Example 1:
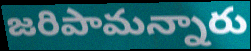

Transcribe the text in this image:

జరిపామన్నారు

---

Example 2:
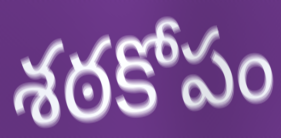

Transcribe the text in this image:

శఠకోపం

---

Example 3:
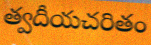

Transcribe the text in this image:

త్వదీయచరితం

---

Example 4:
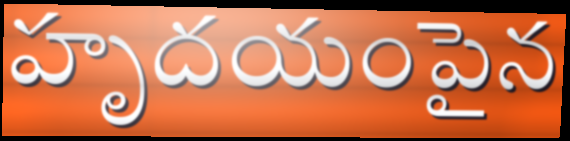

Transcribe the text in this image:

హృదయంపైన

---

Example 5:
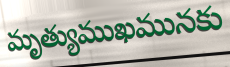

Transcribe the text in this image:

మృత్యుముఖమునకు